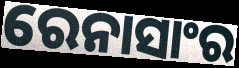
ରେନାସାଂର